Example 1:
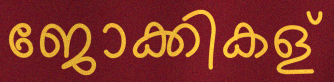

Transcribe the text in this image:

ജോക്കികള്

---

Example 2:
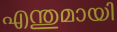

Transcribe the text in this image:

എന്തുമായി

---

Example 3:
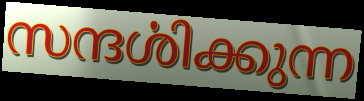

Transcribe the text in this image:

സന്ദൎശിക്കുന്ന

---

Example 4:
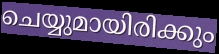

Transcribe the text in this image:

ചെയ്യുമായിരിക്കും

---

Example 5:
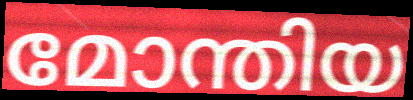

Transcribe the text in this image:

മോന്തിയ